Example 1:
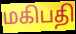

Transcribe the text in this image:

மகிபதி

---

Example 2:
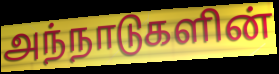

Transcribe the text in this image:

அந்நாடுகளின்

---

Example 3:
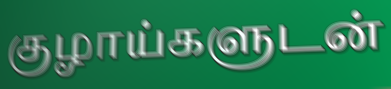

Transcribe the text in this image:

குழாய்களுடன்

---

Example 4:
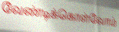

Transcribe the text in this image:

வேண்டிக்கொள்வோம்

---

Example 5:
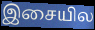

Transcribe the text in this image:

இசையில